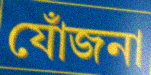
যোঁজনা